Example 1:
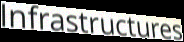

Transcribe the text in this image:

Infrastructures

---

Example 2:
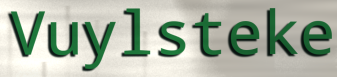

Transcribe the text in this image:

Vuylsteke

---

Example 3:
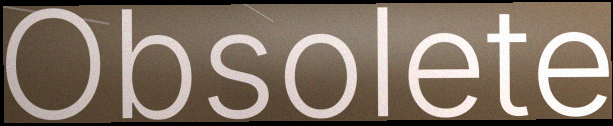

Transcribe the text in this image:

Obsolete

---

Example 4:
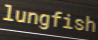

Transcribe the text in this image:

lungfish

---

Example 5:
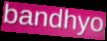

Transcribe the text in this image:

bandhyo